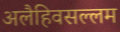
अलैहिवसल्लम